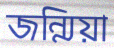
জন্মিয়া